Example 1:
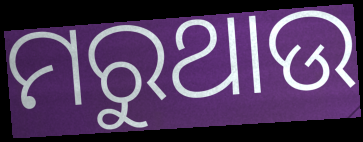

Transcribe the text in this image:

ମରୁଥାଉ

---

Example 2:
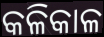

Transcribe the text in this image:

କଳିକାଳ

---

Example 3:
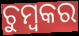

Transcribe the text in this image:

ଚୁମ୍ବକର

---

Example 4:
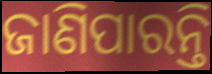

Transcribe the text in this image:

ଜାଣିପାରନ୍ତି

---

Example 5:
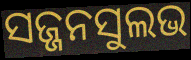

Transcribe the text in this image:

ସଜ୍ଜନସୁଲଭ